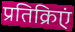
प्रतिक्रिएं